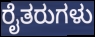
ರೈತರುಗಳು